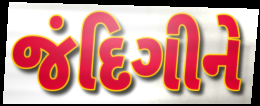
જંદિગીને